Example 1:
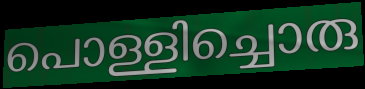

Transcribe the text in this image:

പൊള്ളിച്ചൊരു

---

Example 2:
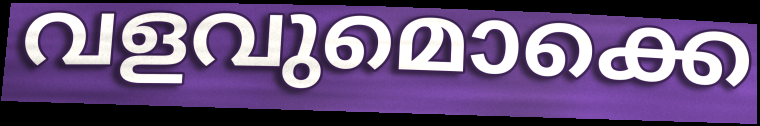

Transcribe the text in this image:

വളവുമൊക്കെ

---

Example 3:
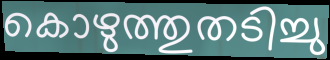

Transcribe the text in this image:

കൊഴുത്തുതടിച്ചു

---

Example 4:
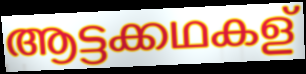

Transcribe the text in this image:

ആട്ടക്കഥകള്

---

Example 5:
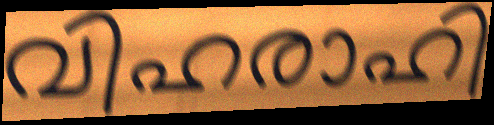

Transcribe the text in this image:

വിഹരാഹി